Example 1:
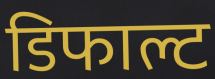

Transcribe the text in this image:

डिफाल्ट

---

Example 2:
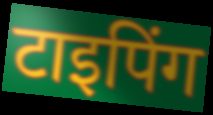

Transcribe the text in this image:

टाइपिंग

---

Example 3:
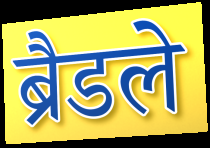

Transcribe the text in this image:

ब्रैडले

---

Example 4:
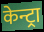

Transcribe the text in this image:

केन्ट्रा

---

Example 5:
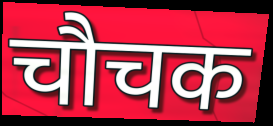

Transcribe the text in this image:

चौचक